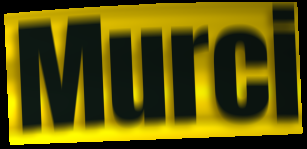
Murci